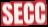
SECC